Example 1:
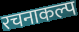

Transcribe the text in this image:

रचनाकल्प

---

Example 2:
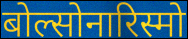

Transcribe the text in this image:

बोल्सोनारिस्मो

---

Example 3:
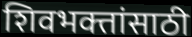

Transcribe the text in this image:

शिवभक्तांसाठी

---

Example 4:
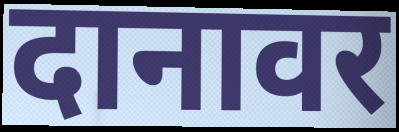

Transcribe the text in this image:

दानावर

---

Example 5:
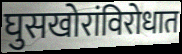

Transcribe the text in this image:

घुसखोरांविरोधात